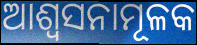
ଆଶ୍ୱସନାମୂଳକ